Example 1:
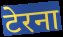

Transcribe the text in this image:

टेरना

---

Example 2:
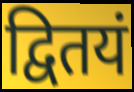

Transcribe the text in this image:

द्वितयं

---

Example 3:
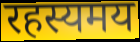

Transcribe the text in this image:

रहस्यमय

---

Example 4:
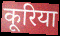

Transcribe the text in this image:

कूरिया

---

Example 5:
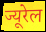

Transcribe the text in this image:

ज्यूरेल